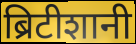
ब्रिटीशानी